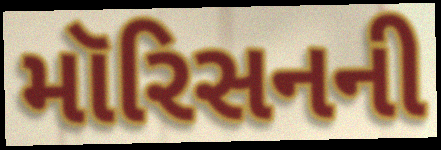
મૉરિસનની